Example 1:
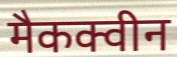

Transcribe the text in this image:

मैकक्वीन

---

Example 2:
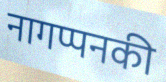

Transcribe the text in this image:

नागप्पनकी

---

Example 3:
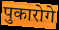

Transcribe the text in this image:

पुकारोगे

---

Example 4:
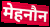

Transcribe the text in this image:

मेहनौन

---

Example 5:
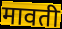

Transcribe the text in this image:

मावती